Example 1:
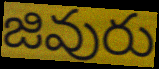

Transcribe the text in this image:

జివురు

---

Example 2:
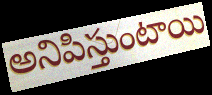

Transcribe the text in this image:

అనిపిస్తుంటాయి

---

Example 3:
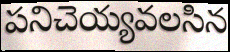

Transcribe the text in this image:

పనిచెయ్యవలసిన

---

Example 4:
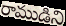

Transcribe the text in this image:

రాముడిని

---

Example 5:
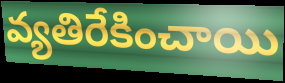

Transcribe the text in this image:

వ్యతిరేకించాయి